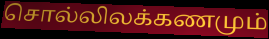
சொல்லிலக்கணமும்